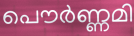
പൌർണ്ണമി